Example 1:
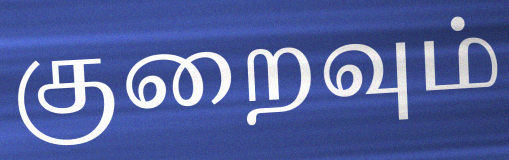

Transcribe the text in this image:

குறைவும்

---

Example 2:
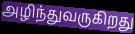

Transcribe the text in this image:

அழிந்துவருகிறது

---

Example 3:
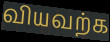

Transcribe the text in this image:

வியவற்க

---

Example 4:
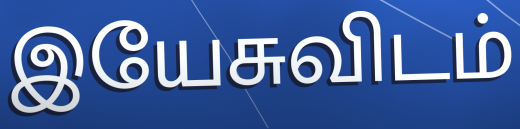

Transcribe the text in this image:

இயேசுவிடம்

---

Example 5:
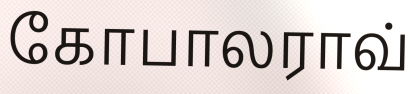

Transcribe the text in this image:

கோபாலராவ்